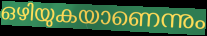
ഒഴിയുകയാണെന്നും